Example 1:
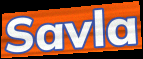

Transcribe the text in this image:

Savla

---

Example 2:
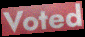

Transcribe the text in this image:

Voted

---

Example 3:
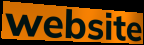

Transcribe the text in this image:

website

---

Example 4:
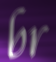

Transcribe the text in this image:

br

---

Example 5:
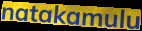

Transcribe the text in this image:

natakamulu